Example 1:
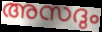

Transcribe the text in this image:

അസദും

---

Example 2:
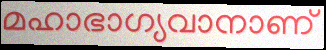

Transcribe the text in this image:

മഹാഭാഗ്യവാനാണ്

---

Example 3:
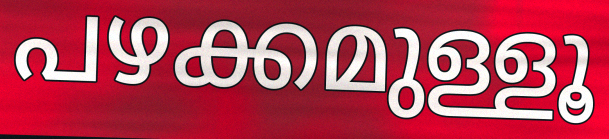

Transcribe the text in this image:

പഴക്കമുള്ളൂ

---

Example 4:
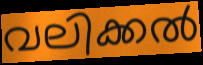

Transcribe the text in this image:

വലിക്കൽ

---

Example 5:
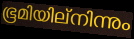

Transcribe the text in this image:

ഭൂമിയില്നിന്നും